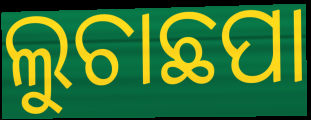
ଲୁଚାଛପା